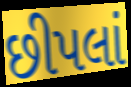
છીપલાં